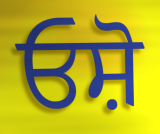
ਓਸ਼ੋ